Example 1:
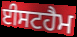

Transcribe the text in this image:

ਈਸਟਹੈਮ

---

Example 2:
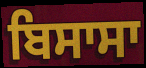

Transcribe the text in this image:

ਬਿਸਾਸਾ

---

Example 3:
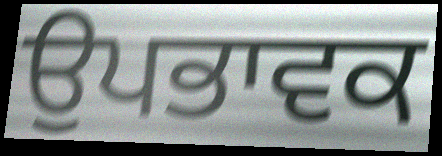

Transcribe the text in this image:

ਉਪਭਾਵਕ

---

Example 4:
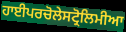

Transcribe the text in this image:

ਹਾਈਪਰਚੋਲੇਸਟ੍ਰੋਲਿਮੀਆ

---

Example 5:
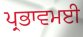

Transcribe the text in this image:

ਪ੍ਰਭਾਵਮਈ